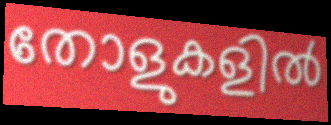
തോളുകളിൽ